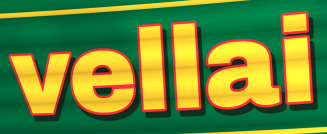
vellai